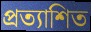
প্রত্যাশিত